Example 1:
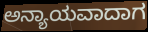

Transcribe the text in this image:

ಅನ್ಯಾಯವಾದಾಗ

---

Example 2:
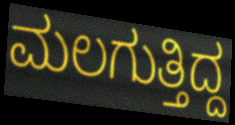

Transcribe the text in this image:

ಮಲಗುತ್ತಿದ್ದ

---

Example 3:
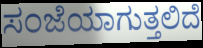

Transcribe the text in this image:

ಸಂಜೆಯಾಗುತ್ತಲಿದೆ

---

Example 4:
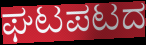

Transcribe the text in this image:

ಘಟಪಟದ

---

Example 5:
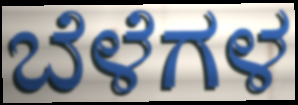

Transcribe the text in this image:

ಬೆಳೆಗಳ